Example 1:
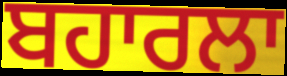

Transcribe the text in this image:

ਬਹਾਰਲਾ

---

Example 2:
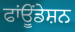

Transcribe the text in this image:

ਫਾਂਊਂਡੇਸ਼ਨ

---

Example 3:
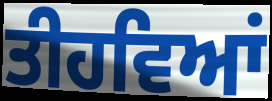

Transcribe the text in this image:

ਤੀਹਵਿਆਂ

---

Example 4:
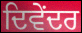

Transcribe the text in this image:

ਦਿਵੇਂਦਰ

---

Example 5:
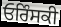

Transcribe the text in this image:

ਓਰਿੰਸਕੀ